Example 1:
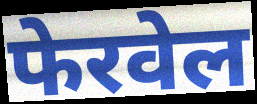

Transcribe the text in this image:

फेरवेल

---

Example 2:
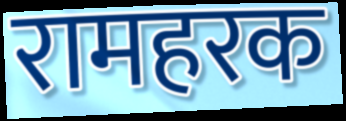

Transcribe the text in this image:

रामहरक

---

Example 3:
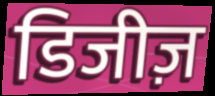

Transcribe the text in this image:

डिजीज़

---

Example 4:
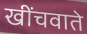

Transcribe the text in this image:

खींचवाते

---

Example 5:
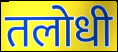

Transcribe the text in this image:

तलोधी